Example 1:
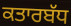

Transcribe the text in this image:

ਕਤਾਰਬੱਧ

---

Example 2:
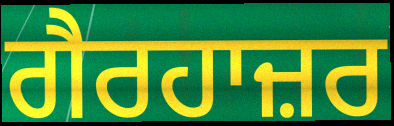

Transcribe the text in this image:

ਗੈਰਹਾਜ਼ਰ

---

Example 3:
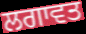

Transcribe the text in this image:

ਲਗਾਵਤ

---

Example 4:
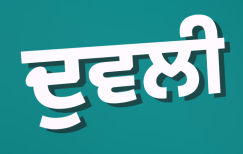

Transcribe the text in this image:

ਦੁਵਲੀ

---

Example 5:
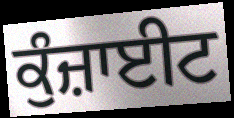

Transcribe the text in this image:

ਕੁੰਜ਼ਾਈਟ